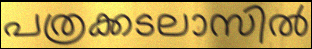
പത്രക്കടലാസിൽ